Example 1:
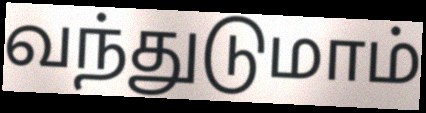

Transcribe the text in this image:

வந்துடுமாம்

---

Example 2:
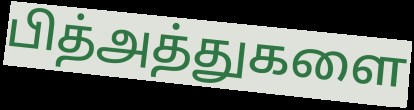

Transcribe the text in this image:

பித்அத்துகளை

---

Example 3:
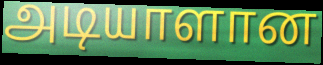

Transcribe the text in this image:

அடியாளான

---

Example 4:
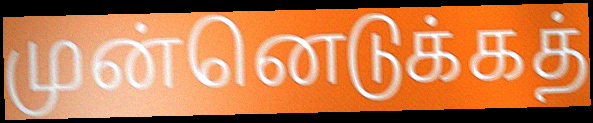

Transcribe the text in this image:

முன்னெடுக்கத்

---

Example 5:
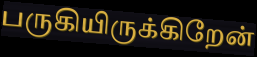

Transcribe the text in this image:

பருகியிருக்கிறேன்